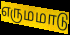
எருமமாடு